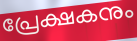
പ്രേക്ഷകനും